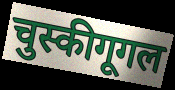
चुस्कीगूगल